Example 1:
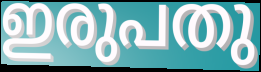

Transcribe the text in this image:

ഇരുപതു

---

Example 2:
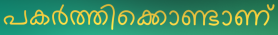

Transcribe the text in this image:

പകർത്തിക്കൊണ്ടാണ്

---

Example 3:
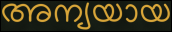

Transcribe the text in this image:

അന്യയായ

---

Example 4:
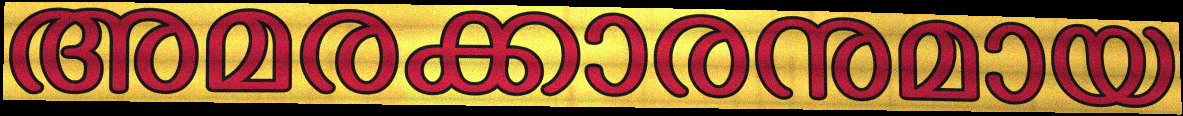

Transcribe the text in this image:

അമരക്കാരനുമായ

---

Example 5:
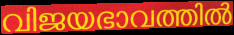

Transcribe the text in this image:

വിജയഭാവത്തിൽ